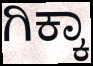
ಗಿಕ್ಕಾ